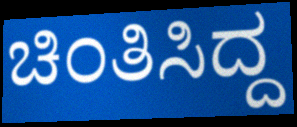
ಚಿಂತಿಸಿದ್ದ